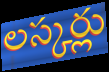
లస్కర్లు